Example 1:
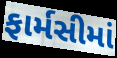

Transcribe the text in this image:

ફાર્મસીમાં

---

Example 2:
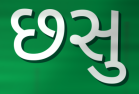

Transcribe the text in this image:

છસુ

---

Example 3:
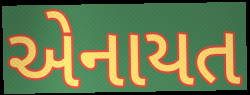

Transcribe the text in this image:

એનાયત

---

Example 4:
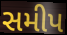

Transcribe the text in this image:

સમીપ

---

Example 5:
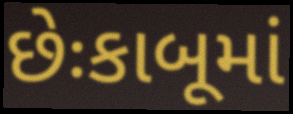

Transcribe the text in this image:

છેઃકાબૂમાં